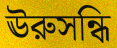
ঊরুসন্ধি